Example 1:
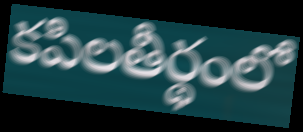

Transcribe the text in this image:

కపిలతీర్థంలో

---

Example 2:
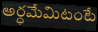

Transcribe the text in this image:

అర్ధమేమిటంటే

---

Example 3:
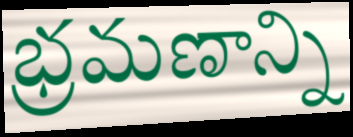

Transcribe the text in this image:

భ్రమణాన్ని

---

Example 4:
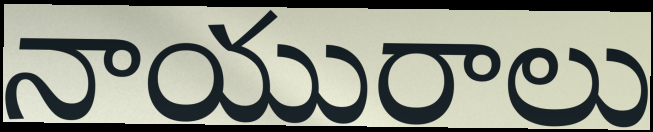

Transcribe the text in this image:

నాయురాలు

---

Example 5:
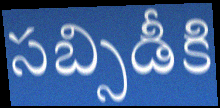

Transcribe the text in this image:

సబ్సిడీకి